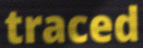
traced